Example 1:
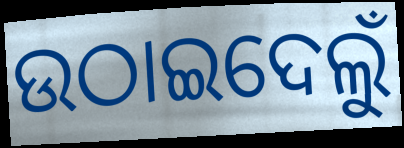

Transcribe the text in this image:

ଉଠାଇଦେଲୁଁ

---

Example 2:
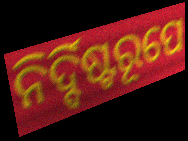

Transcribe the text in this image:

ନିର୍ଦ୍ଦିଷ୍ଟରୂପେ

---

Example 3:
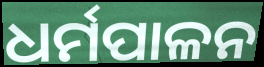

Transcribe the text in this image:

ଧର୍ମପାଳନ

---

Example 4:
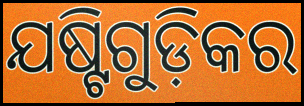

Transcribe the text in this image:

ଯଷ୍ଟିଗୁଡ଼ିକର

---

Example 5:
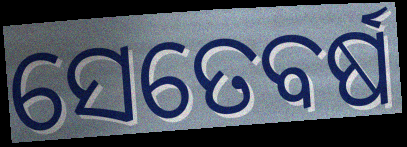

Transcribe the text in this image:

ସେତେବର୍ଷ